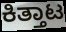
ಕಿತ್ತಾಟ